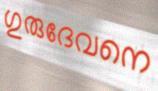
ഗുരുദേവനെ